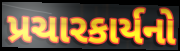
પ્રચારકાર્યનો